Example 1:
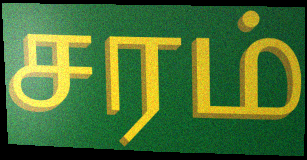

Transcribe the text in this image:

சரம்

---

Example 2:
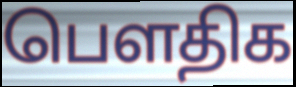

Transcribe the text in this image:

பெளதிக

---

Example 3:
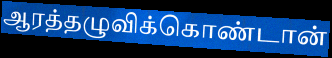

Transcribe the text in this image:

ஆரத்தழுவிக்கொண்டான்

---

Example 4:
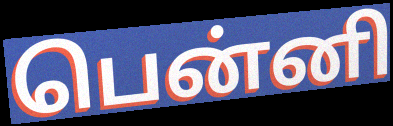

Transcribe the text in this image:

பென்னி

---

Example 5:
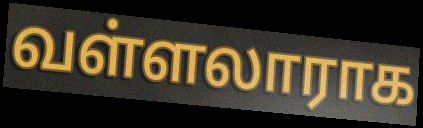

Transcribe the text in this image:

வள்ளலாராக